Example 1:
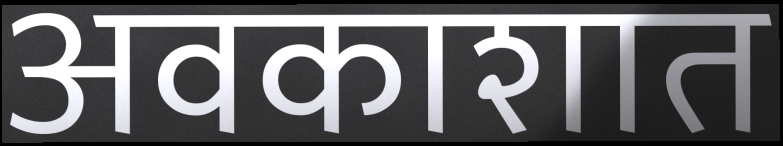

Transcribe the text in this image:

अवकाशात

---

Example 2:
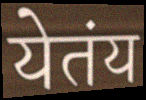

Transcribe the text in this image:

येतंय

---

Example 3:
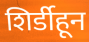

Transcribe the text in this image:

शिर्डीहून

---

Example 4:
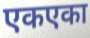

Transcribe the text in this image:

एकएका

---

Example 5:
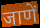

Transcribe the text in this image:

जाणें